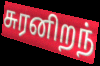
சுரனிறந்